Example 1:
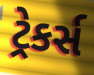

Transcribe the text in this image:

ટ્રેકર્સ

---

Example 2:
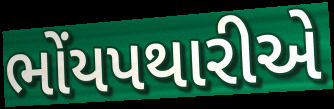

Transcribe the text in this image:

ભોંયપથારીએ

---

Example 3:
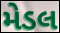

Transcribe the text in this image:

મેડલ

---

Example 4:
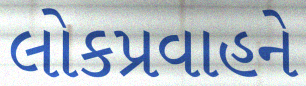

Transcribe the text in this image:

લોકપ્રવાહને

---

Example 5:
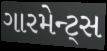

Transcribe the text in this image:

ગારમેન્ટ્સ